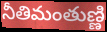
నీతిమంతుణ్ణి